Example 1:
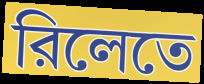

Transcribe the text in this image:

রিলেতে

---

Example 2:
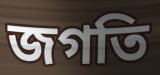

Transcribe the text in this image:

জগতি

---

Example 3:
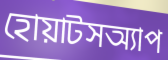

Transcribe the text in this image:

হোয়াটসঅ্যাপ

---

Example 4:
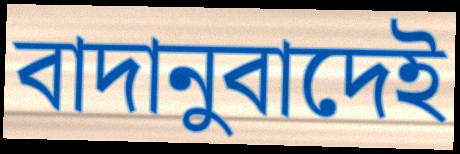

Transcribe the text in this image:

বাদানুবাদেই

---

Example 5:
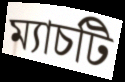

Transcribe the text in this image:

ম্যাচটি